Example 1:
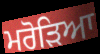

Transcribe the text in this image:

ਮਰੋੜਿਆ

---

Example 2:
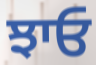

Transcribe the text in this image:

ਝਾਓ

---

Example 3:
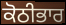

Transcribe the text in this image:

ਕੋਠੀਭਾਰ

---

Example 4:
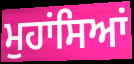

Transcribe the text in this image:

ਮੁਹਾਂਸਿਆਂ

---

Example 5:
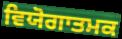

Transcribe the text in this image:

ਵਿਯੋਗਾਤਮਕ